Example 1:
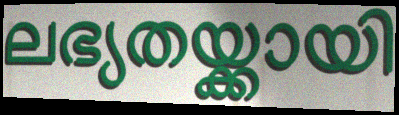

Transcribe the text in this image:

ലഭ്യതയ്ക്കായി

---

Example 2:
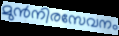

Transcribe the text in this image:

മുൻനിരസേവനം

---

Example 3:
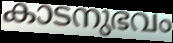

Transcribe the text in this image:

കാടനുഭവം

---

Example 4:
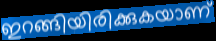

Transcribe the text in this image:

ഇറങ്ങിയിരിക്കുകയാണ്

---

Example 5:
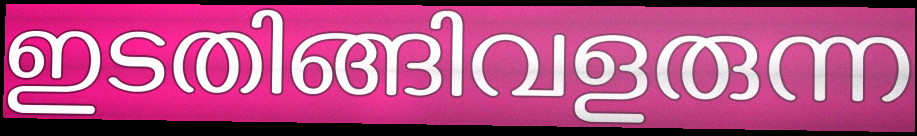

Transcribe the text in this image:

ഇടതിങ്ങിവളരുന്ന